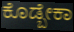
ಕೊಡ್ಬೇಕಾ